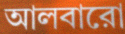
আলবারো